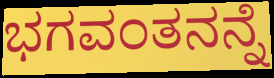
ಭಗವಂತನನ್ನೆ